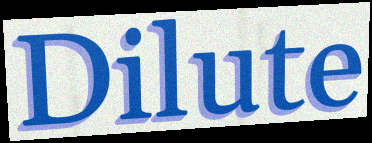
Dilute